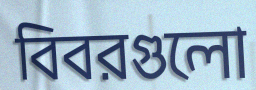
বিবরগুলো